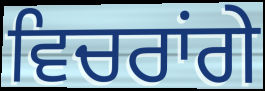
ਵਿਚਰਾਂਗੇ